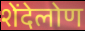
शेंदेलोण